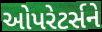
ઓપરેટર્સને